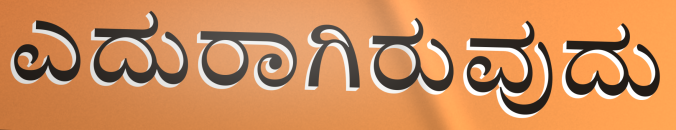
ಎದುರಾಗಿರುವುದು